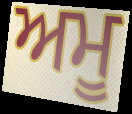
ਅਮੂ